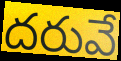
దరువే